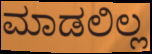
ಮಾಡಲಿಲ್ಲ